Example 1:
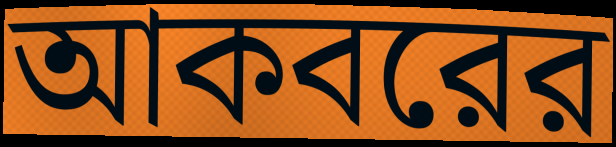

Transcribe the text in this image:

আকবরের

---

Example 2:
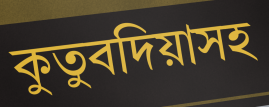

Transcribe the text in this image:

কুতুবদিয়াসহ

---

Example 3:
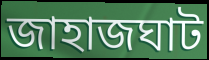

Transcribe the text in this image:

জাহাজঘাট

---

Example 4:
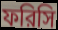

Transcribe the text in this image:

ফরিসি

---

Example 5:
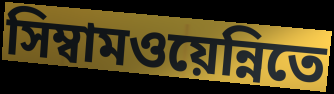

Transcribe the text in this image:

সিম্বামওয়েন্নিতে